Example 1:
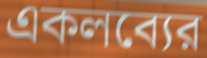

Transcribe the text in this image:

একলব্যের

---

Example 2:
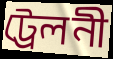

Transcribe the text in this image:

ট্রেলনী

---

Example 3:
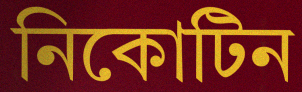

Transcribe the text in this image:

নিকোটিন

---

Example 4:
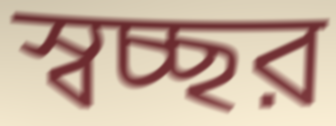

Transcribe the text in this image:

স্বচ্ছর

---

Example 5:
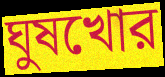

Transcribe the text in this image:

ঘুষখোর